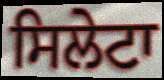
ਸਿਲੇਟਾ